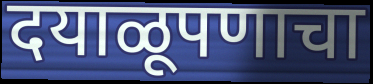
दयाळूपणाचा